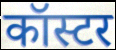
कॉस्टर